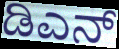
ಡಿಎನ್